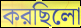
করছিলো